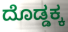
ದೊಡ್ಡಕ್ಕ